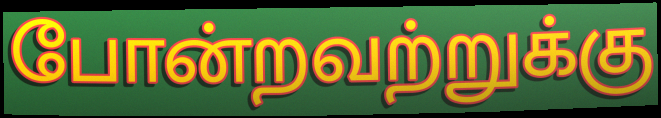
போன்றவற்றுக்கு